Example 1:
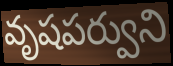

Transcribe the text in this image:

వృషపర్వుని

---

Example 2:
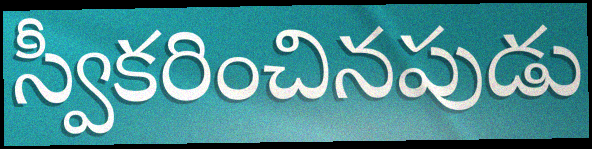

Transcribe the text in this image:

స్వీకరించినపుడు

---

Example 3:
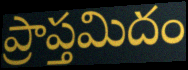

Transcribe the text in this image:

ప్రాప్తమిదం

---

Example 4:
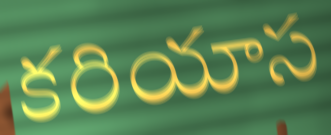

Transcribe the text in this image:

కరియాస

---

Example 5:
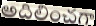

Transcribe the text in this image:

అదిలించగా